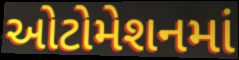
ઓટોમેશનમાં